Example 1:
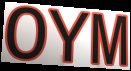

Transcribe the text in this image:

OYM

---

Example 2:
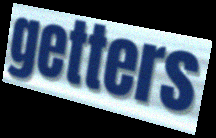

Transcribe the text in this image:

getters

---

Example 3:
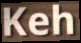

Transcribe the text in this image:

Keh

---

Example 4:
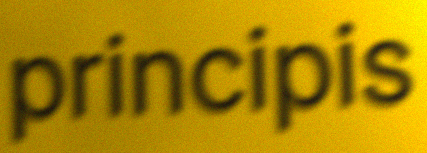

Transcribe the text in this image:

principis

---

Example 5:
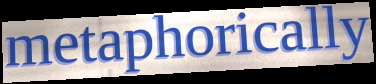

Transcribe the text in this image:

metaphorically